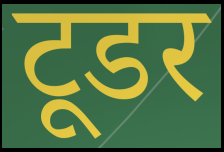
टूडर